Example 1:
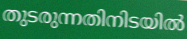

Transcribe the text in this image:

തുടരുന്നതിനിടയിൽ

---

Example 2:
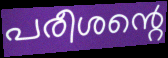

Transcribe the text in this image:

പരീശന്റെ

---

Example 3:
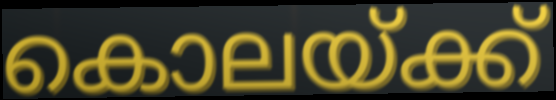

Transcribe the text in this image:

കൊലയ്ക്ക്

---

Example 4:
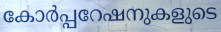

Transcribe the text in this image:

കോർപ്പറേഷനുകളുടെ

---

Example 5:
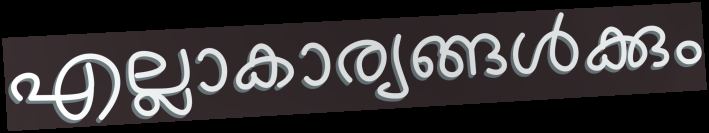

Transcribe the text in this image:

എല്ലാകാര്യങ്ങൾക്കും